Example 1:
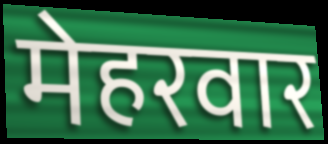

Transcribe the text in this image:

मेहरवार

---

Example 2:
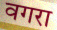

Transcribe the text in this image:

वगरा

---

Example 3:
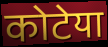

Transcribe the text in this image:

कोटेया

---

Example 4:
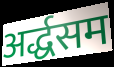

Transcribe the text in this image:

अर्द्धसम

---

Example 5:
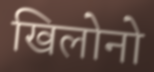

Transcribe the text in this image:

खिलोनो